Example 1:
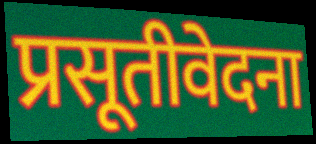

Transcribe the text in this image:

प्रसूतीवेदना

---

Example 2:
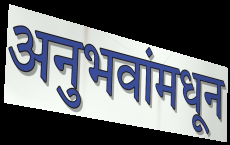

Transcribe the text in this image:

अनुभवांमधून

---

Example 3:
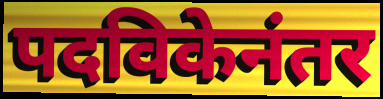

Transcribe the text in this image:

पदविकेनंतर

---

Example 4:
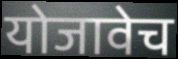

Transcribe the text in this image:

योजावेच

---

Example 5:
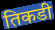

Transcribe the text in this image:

तिकडी